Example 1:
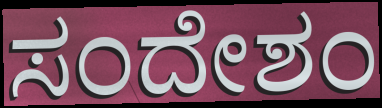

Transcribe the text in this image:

ಸಂದೇಶಂ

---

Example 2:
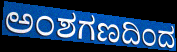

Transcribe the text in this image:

ಅಂಶಗಣದಿಂದ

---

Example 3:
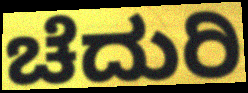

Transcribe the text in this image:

ಚೆದುರಿ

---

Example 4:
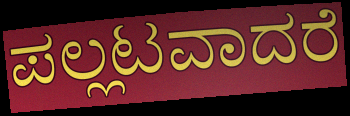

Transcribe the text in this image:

ಪಲ್ಲಟವಾದರೆ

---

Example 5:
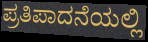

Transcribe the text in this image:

ಪ್ರತಿಪಾದನೆಯಲ್ಲಿ